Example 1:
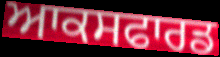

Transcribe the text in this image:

ਆਕਸਫਾਰਡ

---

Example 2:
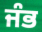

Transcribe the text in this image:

ਜੰਭ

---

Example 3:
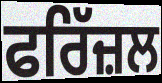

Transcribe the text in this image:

ਫਰਿੱਜ਼ਲ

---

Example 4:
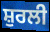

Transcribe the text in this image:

ਸ਼ੁਰਲੀ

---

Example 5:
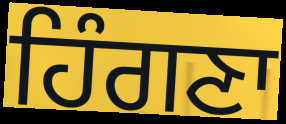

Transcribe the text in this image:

ਹਿੰਗਣਾ